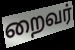
றைவர்